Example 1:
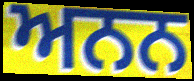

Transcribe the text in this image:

ਅਨਨ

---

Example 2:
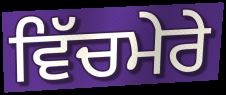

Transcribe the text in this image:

ਵਿੱਚਮੇਰੇ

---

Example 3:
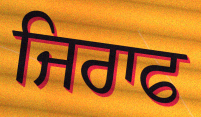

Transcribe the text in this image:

ਜਿਰਾਫ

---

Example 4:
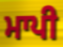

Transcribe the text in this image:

ਮਾਪੀ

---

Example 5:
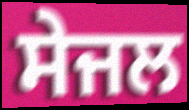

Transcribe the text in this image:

ਸੇਜਲ